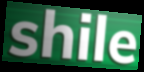
shile